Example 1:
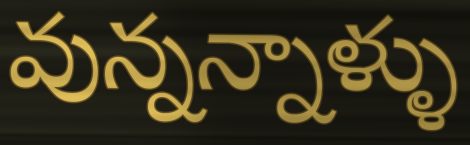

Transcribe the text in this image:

వున్నన్నాళ్ళు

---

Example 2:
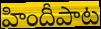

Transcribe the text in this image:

హిందీపాట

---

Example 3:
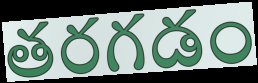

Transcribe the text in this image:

తరగడం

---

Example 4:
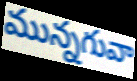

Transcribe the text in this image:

మున్నగువా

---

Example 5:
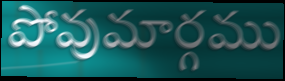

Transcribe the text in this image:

పోవుమార్గము